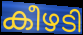
കീഴടി